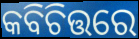
କବିଚିତ୍ତରେ